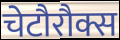
चेटौरौक्स